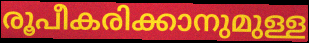
രൂപീകരിക്കാനുമുള്ള